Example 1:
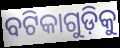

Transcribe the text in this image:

ବଟିକାଗୁଡ଼ିକୁ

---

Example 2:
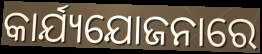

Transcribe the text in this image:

କାର୍ଯ୍ୟଯୋଜନାରେ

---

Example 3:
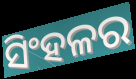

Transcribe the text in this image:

ସିଂହଳର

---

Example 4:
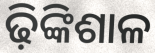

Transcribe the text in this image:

ଢ଼ିଙ୍କିଶାଳ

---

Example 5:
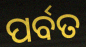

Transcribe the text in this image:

ପର୍ବତ